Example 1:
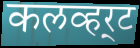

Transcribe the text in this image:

कलव्हर्ट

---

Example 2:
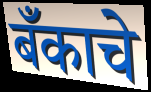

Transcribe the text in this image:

बँकाचे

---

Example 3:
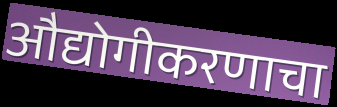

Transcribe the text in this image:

औद्योगीकरणाचा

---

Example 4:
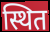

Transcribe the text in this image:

स्थित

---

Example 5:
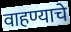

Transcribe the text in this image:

वाहण्याचे